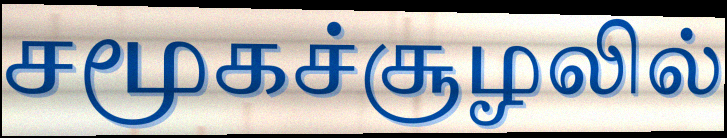
சமூகச்சூழலில்